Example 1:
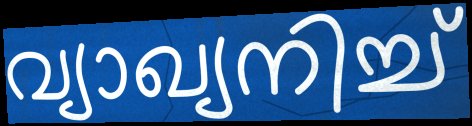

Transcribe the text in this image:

വ്യാഖ്യനിച്ച്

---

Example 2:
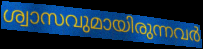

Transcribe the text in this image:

ശ്വാസവുമായിരുന്നവർ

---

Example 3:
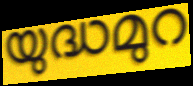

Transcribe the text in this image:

യുദ്ധമുറ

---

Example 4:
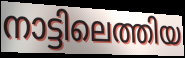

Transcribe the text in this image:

നാട്ടിലെത്തിയ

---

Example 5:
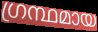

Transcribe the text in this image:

ഗ്രന്ഥമായ